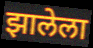
झालेला